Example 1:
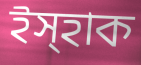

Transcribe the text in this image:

ইস্‌হাক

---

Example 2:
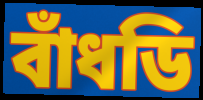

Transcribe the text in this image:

বাঁধডি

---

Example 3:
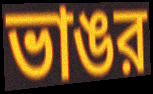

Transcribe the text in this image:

ভাঙর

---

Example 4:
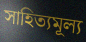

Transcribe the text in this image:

সাহিত্যমূল্য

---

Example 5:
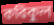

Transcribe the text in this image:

কবিকুল